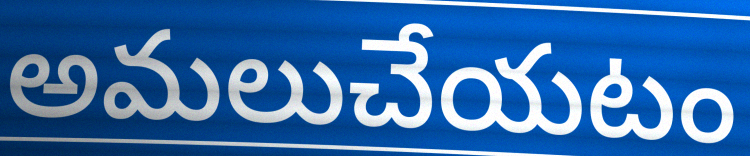
అమలుచేయటం